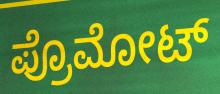
ಪ್ರೊಮೋಟ್